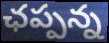
ఛప్పన్న